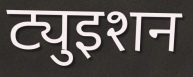
ट्युइशन